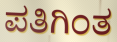
ಪತಿಗಿಂತ